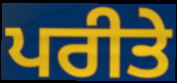
ਪਰੀਤੇ